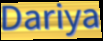
Dariya